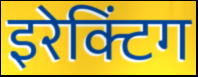
इरेक्टिंग